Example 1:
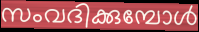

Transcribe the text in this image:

സംവദിക്കുമ്പോൾ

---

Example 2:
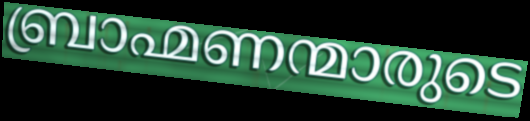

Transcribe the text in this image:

ബ്രാഹ്മണന്മാരുടെ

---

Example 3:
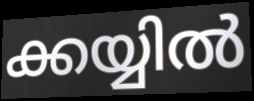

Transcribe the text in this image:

ക്കയ്യിൽ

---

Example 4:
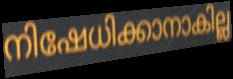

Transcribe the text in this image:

നിഷേധിക്കാനാകില്ല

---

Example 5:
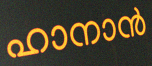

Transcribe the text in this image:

ഹാനാൻ